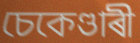
চেকেণ্ডাৰী